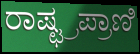
ರಾಷ್ಟ್ರಪ್ರಾಣಿ